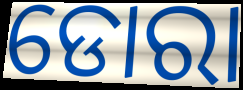
ଡୋରା